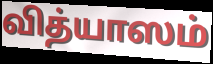
வித்யாஸம்